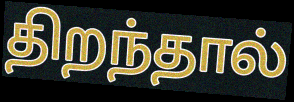
திறந்தால்